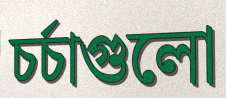
চর্চাগুলো